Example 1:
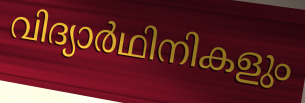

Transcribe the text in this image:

വിദ്യാർഥിനികളും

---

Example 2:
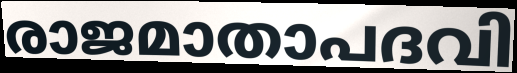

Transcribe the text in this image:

രാജമാതാപദവി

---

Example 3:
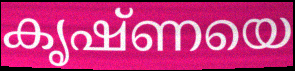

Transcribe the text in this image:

കൃഷ്ണയെ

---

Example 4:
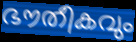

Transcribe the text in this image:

ഭൗതീകവും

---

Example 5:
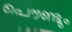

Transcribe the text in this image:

പൌണ്ടും